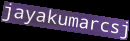
jayakumarcsj